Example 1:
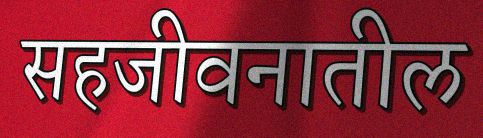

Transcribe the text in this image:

सहजीवनातील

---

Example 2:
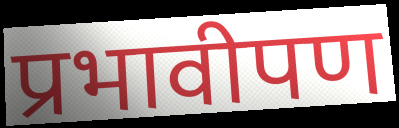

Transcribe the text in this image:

प्रभावीपण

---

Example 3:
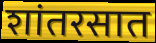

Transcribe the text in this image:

शांतरसात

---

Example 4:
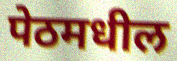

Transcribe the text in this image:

पेठमधील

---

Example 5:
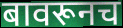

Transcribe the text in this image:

बावरूनच